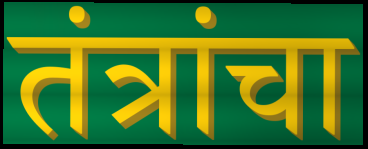
तंत्रांचा